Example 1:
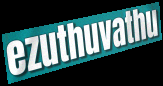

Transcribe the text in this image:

ezuthuvathu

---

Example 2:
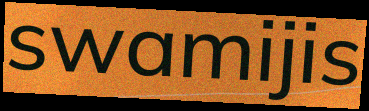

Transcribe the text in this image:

swamijis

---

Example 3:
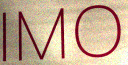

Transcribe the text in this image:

IMO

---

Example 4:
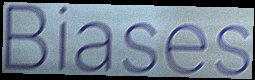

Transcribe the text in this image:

Biases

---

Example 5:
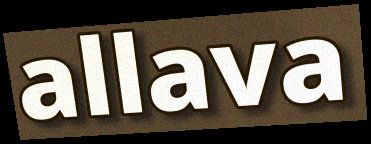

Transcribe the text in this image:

allava